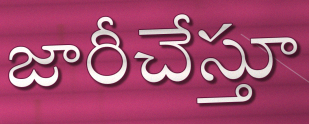
జారీచేస్తూ